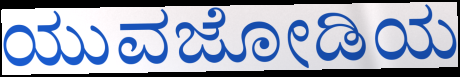
ಯುವಜೋಡಿಯ